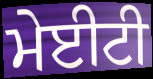
ਮੇਈਟੀ